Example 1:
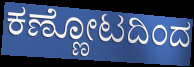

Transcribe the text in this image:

ಕಣ್ಣೋಟದಿಂದ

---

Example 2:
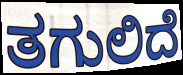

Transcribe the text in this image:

ತಗುಲಿದೆ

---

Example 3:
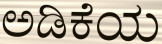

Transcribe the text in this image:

ಅಡಿಕೆಯ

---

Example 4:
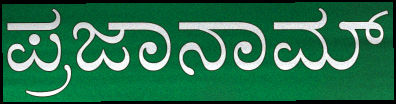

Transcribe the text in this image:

ಪ್ರಜಾನಾಮ್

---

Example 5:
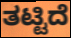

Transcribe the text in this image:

ತಟ್ಟಿದೆ